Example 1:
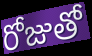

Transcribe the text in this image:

రోజుతో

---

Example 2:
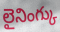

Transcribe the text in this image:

లైనింగ్కు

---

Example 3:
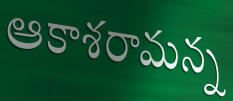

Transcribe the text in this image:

ఆకాశరామన్న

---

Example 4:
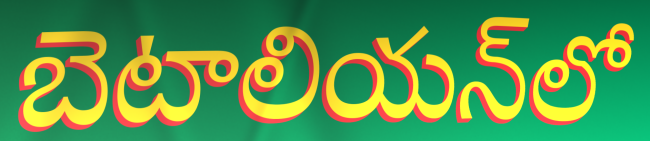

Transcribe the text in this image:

బెటాలియన్‌లో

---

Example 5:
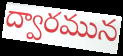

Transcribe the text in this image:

ద్వారమున